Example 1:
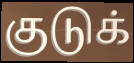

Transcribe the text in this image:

குடுக்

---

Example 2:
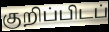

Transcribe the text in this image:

குறிப்பிடப்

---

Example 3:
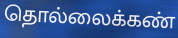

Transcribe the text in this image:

தொல்லைக்கண்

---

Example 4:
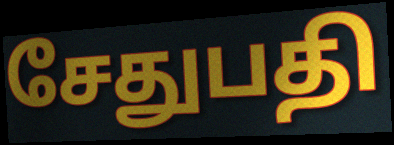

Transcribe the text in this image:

சேதுபதி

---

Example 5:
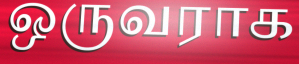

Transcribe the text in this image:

ஒருவராக